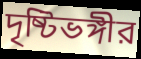
দৃষ্টিভঙ্গীর